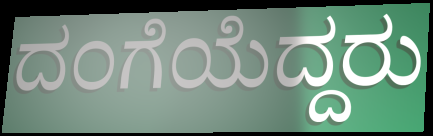
ದಂಗೆಯೆದ್ದರು